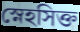
স্নেহসিক্ত